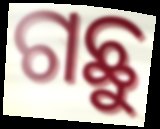
ଗଛୁ